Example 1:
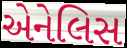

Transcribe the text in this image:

એનેલિસ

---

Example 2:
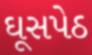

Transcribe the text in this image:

ઘૂસપેઠ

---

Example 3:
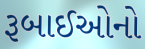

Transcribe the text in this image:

રૂબાઈઓનો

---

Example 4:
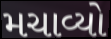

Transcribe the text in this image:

મચાવ્યો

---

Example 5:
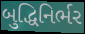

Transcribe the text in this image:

બુદ્ધિનિર્ભર